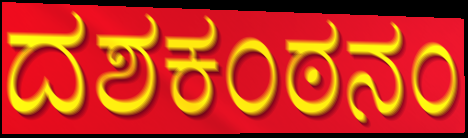
ದಶಕಂಠನಂ